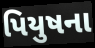
પિયુષના